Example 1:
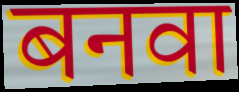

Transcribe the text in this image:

बनवा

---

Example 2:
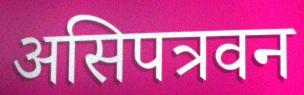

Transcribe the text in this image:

असिपत्रवन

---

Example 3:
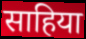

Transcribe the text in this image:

साहिया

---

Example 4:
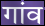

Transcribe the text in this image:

गांव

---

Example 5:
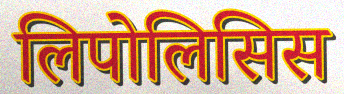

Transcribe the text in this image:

लिपोलिसिस